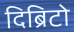
दिब्रिटो